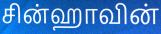
சின்ஹாவின்